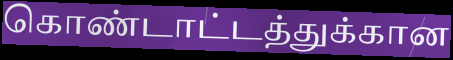
கொண்டாட்டத்துக்கான